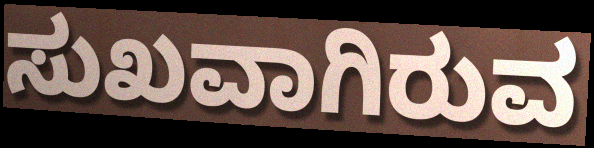
ಸುಖವಾಗಿರುವ